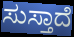
ಸುಸ್ತಾದೆ